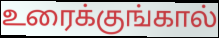
உரைக்குங்கால்